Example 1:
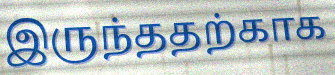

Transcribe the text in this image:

இருந்ததற்காக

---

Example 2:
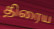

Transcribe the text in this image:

திரைய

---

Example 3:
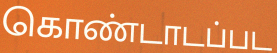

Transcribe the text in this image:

கொண்டாடப்பட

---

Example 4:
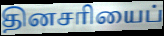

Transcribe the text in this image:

தினசரியைப்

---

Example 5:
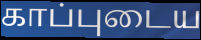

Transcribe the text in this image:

காப்புடைய